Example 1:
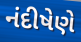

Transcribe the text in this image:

નંદીષેણે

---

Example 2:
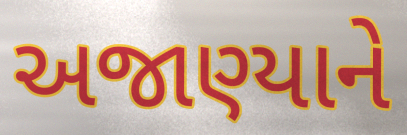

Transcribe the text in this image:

અજાણ્યાને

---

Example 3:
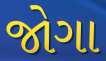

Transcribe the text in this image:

જોગા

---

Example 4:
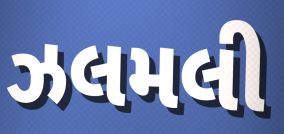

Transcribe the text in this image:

ઝલમલી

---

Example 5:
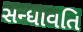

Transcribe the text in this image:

સન્ધાવતિ